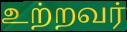
உற்றவர்